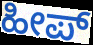
ಹೀಪ್